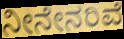
ನೀನೇನರಿವೆ